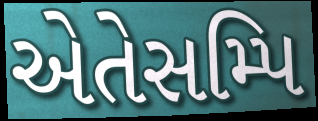
એતેસમ્પિ